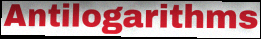
Antilogarithms